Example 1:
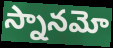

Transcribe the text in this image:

స్నానమో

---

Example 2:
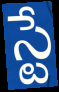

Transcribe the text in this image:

స్టే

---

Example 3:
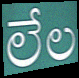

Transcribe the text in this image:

లేల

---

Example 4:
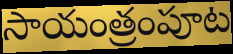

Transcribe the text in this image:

సాయంత్రంపూట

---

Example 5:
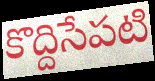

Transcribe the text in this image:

కొద్దిసేపటి